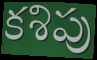
కశిపు